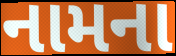
નામના